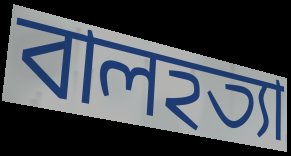
বালহত্যা